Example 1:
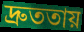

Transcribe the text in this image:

দ্রুততায়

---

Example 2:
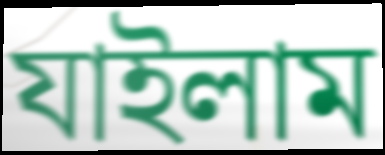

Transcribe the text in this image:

যাইলাম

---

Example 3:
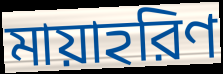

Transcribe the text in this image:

মায়াহরিণ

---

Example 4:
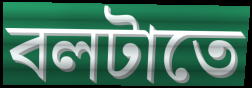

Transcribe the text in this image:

বলটাতে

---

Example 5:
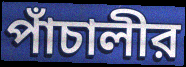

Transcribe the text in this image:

পাঁচালীর